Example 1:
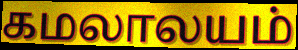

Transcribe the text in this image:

கமலாலயம்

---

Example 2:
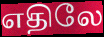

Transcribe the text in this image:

எதிலே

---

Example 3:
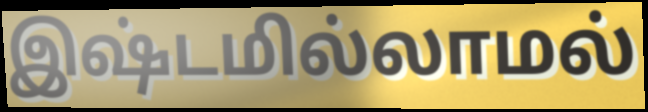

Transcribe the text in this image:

இஷ்டமில்லாமல்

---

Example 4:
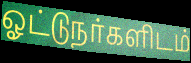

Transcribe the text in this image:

ஓட்டுநர்களிடம்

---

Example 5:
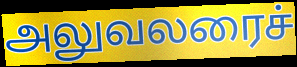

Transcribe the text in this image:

அலுவலரைச்